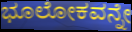
ಭೂಲೋಕವನ್ನೇ